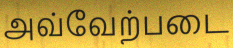
அவ்வேற்படை